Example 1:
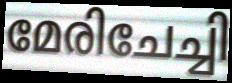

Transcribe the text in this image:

മേരിചേച്ചി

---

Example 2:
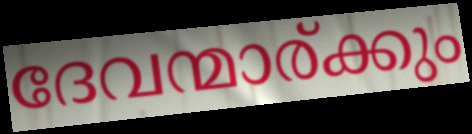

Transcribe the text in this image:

ദേവന്മാര്ക്കും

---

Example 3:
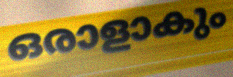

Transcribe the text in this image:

ഒരാളാകും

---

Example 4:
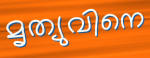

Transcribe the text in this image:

മൃത്യുവിനെ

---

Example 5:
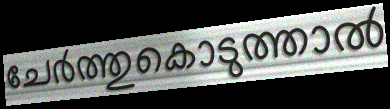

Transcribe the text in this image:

ചേർത്തുകൊടുത്താൽ